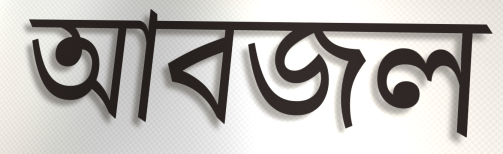
আবজল